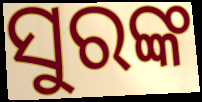
ସୁରଙ୍କ